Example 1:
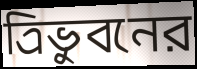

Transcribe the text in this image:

ত্রিভুবনের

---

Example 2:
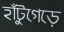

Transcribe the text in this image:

হাঁটুগেড়ে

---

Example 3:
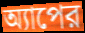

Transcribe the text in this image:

অ্যাপের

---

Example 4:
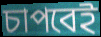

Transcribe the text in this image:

চাপবেই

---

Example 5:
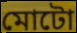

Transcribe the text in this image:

মোটো